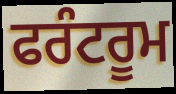
ਫਰੰਟਰੂਮ